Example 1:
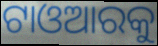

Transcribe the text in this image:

ଟାଓଆରକୁ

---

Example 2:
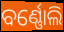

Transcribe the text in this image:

ବର୍ଣ୍ଣୋଲି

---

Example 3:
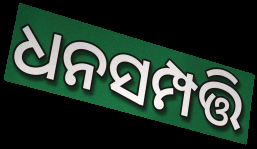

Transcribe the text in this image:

ଧନସମ୍ପତ୍ତି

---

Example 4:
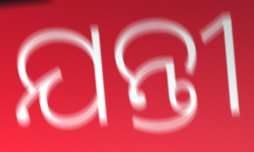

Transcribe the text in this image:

ଯନ୍ତୀ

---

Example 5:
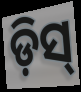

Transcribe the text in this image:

ଡ଼ିସ୍